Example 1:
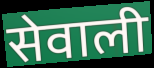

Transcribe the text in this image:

सेवाली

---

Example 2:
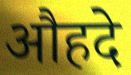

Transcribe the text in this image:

औहदे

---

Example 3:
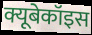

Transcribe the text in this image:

क्यूबेकॉइस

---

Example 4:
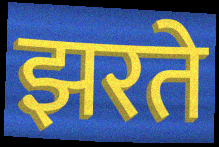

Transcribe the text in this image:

झरते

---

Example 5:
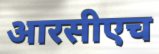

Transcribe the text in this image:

आरसीएच